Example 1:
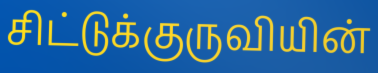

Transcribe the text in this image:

சிட்டுக்குருவியின்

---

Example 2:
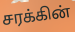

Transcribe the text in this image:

சரக்கின்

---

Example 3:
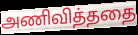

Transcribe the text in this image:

அணிவித்ததை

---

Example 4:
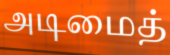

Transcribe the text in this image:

அடிமைத்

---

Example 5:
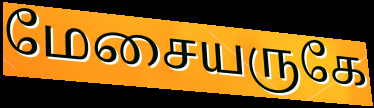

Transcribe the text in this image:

மேசையருகே